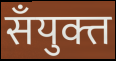
सँयुक्त